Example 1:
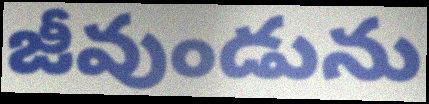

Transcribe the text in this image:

జీవుండును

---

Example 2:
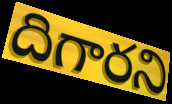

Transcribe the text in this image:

దిగారని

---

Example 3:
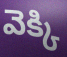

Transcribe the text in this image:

వెక్కి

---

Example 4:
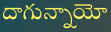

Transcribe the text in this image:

దాగున్నాయో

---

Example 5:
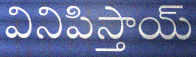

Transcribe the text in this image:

వినిపిస్తాయ్